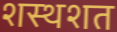
शस्थशत